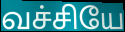
வச்சியே